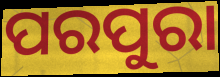
ପରପୁରା